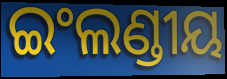
ଇଂଲଣ୍ଡୀୟ